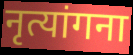
नृत्यांगना